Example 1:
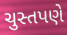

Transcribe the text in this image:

ચુસ્તપણે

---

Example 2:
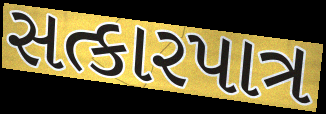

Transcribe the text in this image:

સત્કારપાત્ર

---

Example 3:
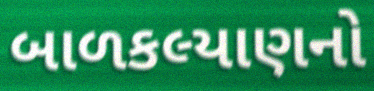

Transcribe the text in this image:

બાળકલ્યાણનો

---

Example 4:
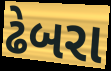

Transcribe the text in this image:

ઢેબરા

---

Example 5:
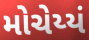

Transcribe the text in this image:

મોચેય્યં